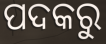
ପଦକରୁ